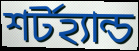
শর্টহ্যান্ড